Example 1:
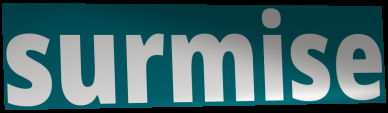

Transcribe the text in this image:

surmise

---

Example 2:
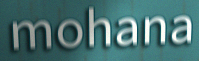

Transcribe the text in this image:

mohana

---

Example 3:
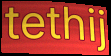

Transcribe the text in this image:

tethij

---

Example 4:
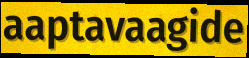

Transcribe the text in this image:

aaptavaagide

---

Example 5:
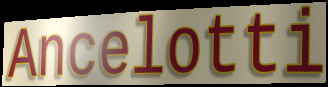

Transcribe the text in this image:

Ancelotti